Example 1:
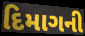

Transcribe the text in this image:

દિમાગની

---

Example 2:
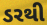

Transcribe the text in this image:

ડરથી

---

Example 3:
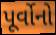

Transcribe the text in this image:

પૂર્વોનો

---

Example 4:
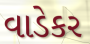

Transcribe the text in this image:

વાડેકર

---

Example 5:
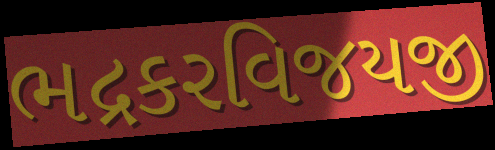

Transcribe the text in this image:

ભદ્રકરવિજયજી